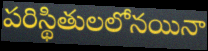
పరిస్థితులలోనయినా